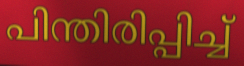
പിന്തിരിപ്പിച്ച്